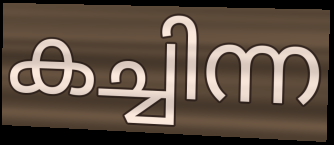
കച്ചിന്ന